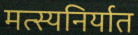
मत्स्यनिर्यात